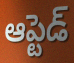
ఆప్టెడ్